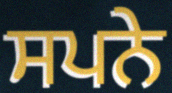
ਸਪਨੇ